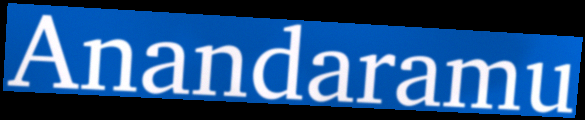
Anandaramu